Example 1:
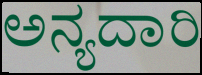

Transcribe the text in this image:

ಅನ್ಯದಾರಿ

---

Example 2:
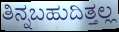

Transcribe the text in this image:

ತಿನ್ನಬಹುದಿತ್ತಲ್ಲ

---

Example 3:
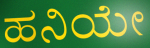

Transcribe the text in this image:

ಹನಿಯೇ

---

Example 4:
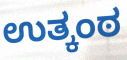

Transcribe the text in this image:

ಉತ್ಕಂಠ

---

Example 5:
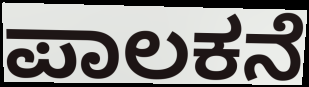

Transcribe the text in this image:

ಪಾಲಕನೆ